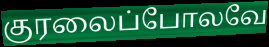
குரலைப்போலவே